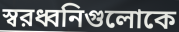
স্বরধ্বনিগুলোকে